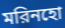
মরিনহো